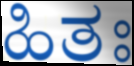
ಹಿತಃ